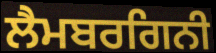
ਲੈਮਬਰਗਿਨੀ